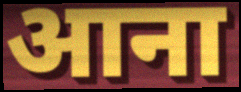
आना